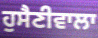
ਹੁਸੈਣੀਵਾਲਾ